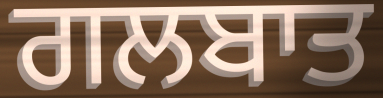
ਗਲਬਾਤ